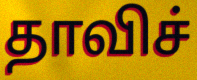
தாவிச்